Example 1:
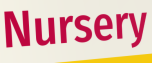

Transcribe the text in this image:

Nursery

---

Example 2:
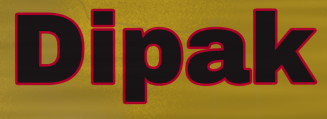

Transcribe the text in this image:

Dipak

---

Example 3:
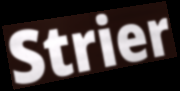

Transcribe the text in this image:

Strier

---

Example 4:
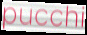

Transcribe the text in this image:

pucchi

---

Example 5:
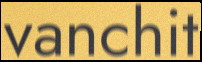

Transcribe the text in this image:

vanchit